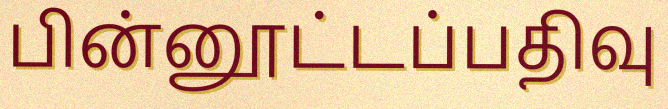
பின்னூட்டப்பதிவு